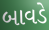
બાવડે